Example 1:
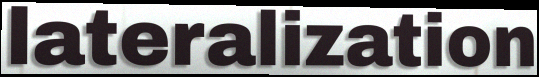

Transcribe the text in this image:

lateralization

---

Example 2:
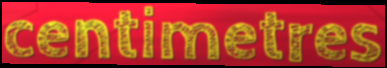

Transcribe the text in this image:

centimetres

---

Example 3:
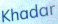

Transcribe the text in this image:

Khadar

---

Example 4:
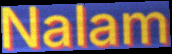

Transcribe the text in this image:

Nalam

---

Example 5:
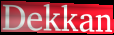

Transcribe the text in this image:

Dekkan